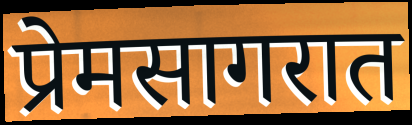
प्रेमसागरात